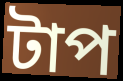
টাপ